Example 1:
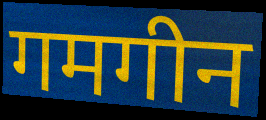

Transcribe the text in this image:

गमगीन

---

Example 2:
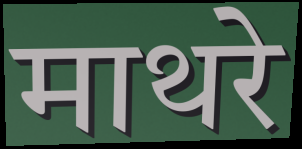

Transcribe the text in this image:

माथरे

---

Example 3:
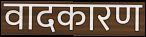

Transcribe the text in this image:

वादकारण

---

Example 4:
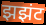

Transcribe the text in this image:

झझंट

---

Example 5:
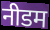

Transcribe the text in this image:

नीडम